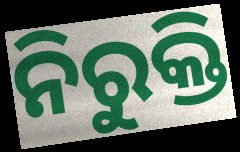
ନିରୁକ୍ତି